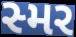
સ્મર